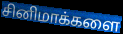
சினிமாக்களை